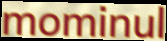
mominul